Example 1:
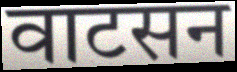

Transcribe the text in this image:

वाटसन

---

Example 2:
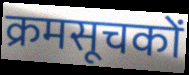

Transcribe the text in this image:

क्रमसूचकों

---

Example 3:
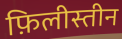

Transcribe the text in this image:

फ़िलीस्तीन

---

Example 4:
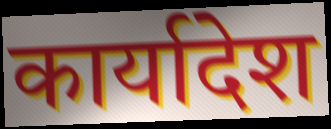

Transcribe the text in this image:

कार्यादेश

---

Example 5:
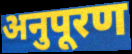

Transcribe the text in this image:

अनुपूरण